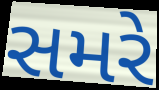
સમરે